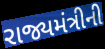
રાજ્યમંત્રીની